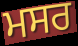
ਮਸਰ